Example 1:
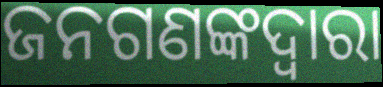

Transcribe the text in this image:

ଜନଗଣଙ୍କଦ୍ୱାରା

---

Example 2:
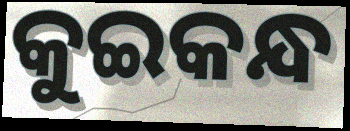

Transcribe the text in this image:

କୁଇକନ୍ଧ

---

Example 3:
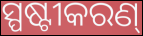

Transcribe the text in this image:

ସ୍ପଷ୍ଟୀକରଣ୍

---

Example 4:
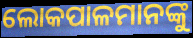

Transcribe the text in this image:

ଲୋକପାଳମାନଙ୍କୁ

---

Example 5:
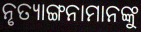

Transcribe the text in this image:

ନୃତ୍ୟାଙ୍ଗନାମାନଙ୍କୁ